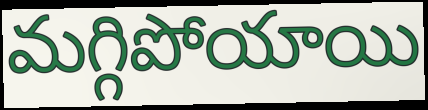
మగ్గిపోయాయి